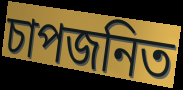
চাপজনিত